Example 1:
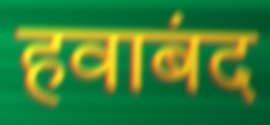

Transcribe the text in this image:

हवाबंद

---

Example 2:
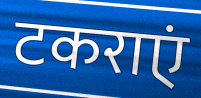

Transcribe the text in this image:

टकराएं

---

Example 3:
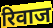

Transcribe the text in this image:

रिवाज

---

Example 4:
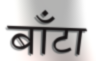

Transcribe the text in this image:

बाँटा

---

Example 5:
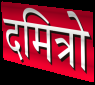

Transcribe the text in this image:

दमित्रो